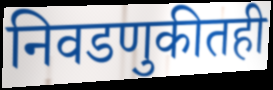
निवडणुकीतही